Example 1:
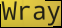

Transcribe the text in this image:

Wray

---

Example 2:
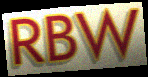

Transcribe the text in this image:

RBW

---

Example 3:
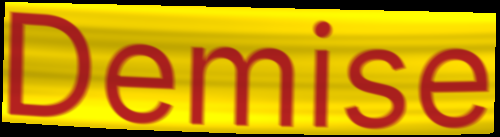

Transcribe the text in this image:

Demise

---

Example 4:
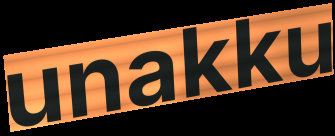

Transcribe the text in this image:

unakku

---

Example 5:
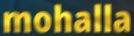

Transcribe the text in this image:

mohalla